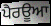
ਪੈਰਊਆ